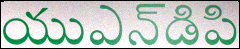
యుఎన్‌డిపి